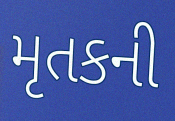
મૃતકની